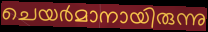
ചെയർമാനായിരുന്നു